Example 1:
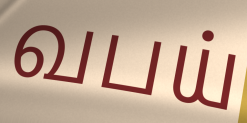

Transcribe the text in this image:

வபய்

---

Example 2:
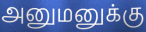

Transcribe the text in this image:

அனுமனுக்கு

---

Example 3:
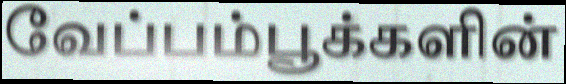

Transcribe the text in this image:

வேப்பம்பூக்களின்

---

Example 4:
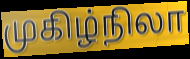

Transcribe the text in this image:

முகிழ்நிலா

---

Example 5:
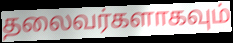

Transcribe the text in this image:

தலைவர்களாகவும்